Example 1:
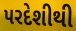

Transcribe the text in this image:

પરદેશીથી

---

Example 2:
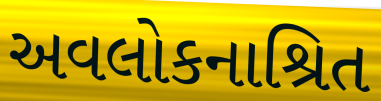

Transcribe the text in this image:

અવલોકનાશ્રિત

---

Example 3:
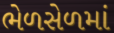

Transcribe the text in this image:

ભેળસેળમાં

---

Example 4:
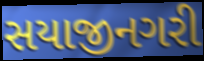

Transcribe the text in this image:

સયાજીનગરી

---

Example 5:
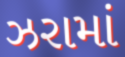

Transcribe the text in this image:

ઝરામાં